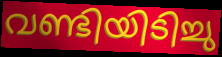
വണ്ടിയിടിച്ചു